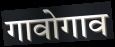
गावोगाव